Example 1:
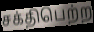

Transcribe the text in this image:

சக்திபெற்ற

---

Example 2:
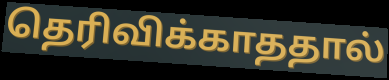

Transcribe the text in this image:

தெரிவிக்காததால்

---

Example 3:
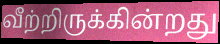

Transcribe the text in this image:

வீற்றிருக்கின்றது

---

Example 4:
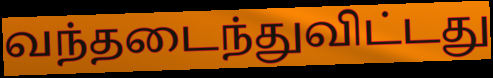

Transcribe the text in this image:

வந்தடைந்துவிட்டது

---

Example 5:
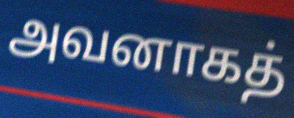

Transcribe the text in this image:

அவனாகத்